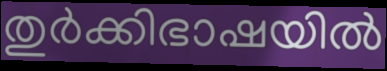
തുർക്കിഭാഷയിൽ